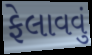
ફેલાવવું